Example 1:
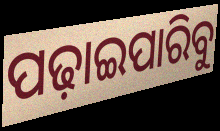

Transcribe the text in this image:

ପଢ଼ାଇପାରିବୁ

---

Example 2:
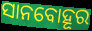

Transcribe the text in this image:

ସାନବୋହୂର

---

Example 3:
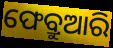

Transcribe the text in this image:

ଫେବ୍ରୁଆରି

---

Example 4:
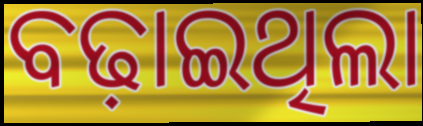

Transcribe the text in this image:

ବଢ଼ାଇଥିଲା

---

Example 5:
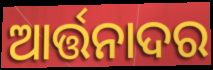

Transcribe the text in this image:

ଆର୍ତ୍ତନାଦର